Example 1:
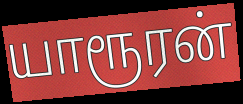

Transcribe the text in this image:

யாரூரன்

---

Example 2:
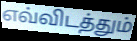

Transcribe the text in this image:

எவ்விடத்தும்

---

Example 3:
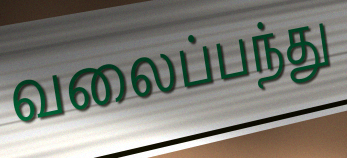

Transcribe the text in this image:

வலைப்பந்து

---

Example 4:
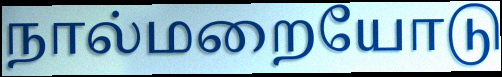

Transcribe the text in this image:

நால்மறையோடு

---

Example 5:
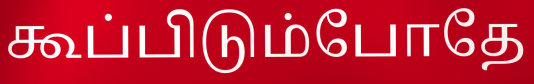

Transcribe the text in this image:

கூப்பிடும்போதே